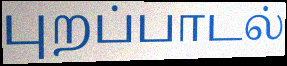
புறப்பாடல்